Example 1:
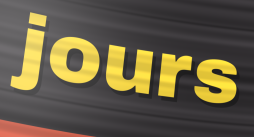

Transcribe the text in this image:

jours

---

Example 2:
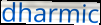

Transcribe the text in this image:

dharmic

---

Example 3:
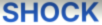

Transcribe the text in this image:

SHOCK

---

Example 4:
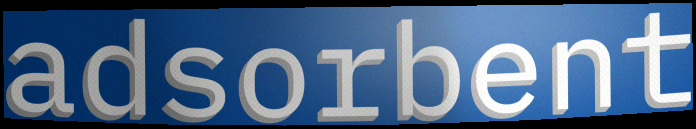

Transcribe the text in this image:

adsorbent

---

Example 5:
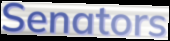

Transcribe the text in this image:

Senators